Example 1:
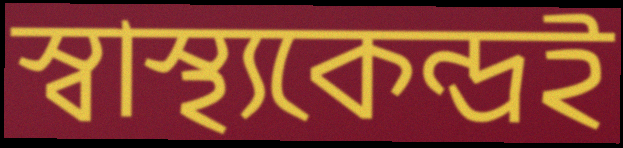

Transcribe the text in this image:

স্বাস্থ্যকেন্দ্ৰই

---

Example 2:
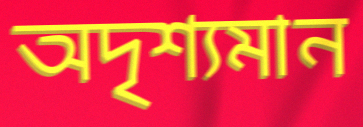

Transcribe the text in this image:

অদৃশ্যমান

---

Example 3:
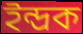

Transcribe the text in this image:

ইন্দ্ৰক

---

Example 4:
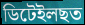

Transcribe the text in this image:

ডিটেইলছত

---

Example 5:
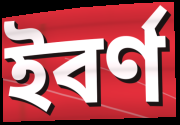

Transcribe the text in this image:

ইবৰ্ণ